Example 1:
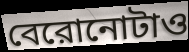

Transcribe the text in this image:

বেরোনোটাও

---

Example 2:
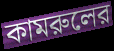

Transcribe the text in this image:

কামরুলের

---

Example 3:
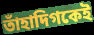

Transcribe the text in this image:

তাঁহাদিগকেই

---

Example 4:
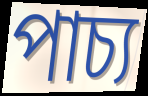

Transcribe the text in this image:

পাচ্য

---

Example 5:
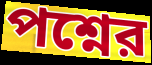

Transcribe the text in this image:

পশ্নের